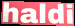
haldi